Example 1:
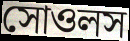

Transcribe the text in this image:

সোওলস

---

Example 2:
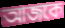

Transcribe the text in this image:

আজকে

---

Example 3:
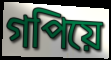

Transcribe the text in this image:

গপিয়ে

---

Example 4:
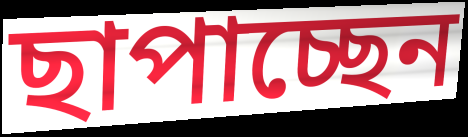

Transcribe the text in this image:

ছাপাচ্ছেন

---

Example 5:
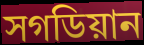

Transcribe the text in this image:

সগডিয়ান